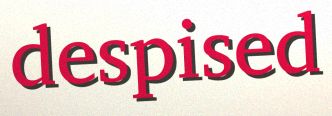
despised